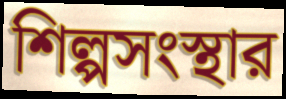
শিল্পসংস্থার